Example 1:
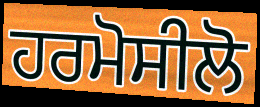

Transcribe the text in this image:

ਹਰਮੋਸੀਲੋ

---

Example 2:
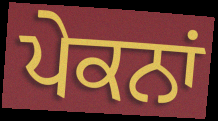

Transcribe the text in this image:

ਪੇਕਨਾਂ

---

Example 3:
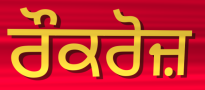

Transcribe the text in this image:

ਰੌਕਰੋਜ਼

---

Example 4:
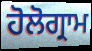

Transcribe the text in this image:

ਹੋਲੋਗ੍ਰਾਮ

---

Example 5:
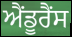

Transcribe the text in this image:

ਐਂਡੂਰੈਂਸ